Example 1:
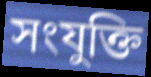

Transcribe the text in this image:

সংযুক্তি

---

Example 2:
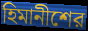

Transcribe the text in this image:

হিমানীশের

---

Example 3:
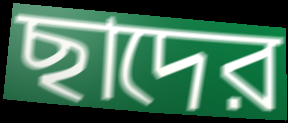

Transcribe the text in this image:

ছাদের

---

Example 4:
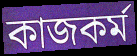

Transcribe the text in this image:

কাজকর্ম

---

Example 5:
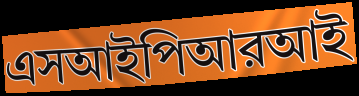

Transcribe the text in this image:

এসআইপিআরআই